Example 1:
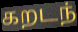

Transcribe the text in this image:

கறடந்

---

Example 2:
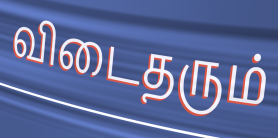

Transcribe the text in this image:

விடைதரும்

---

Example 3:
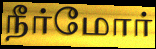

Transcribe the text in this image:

நீர்மோர்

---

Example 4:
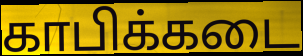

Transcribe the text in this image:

காபிக்கடை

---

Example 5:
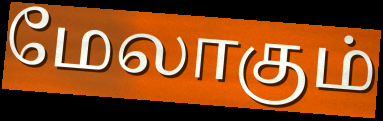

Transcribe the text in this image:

மேலாகும்